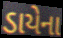
ડાયેના